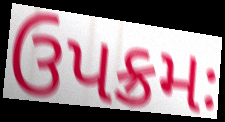
ઉપક્રમઃ